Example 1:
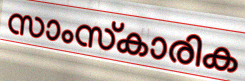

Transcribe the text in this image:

സാംസ്‌കാരിക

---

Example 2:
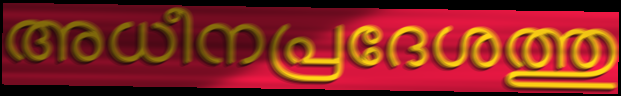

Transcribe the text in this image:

അധീനപ്രദേശത്തു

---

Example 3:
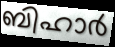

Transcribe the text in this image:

ബിഹാർ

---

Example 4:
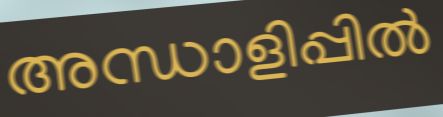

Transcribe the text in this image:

അന്ധാളിപ്പിൽ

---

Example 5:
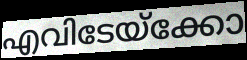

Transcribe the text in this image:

എവിടേയ്ക്കോ